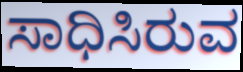
ಸಾಧಿಸಿರುವ